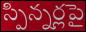
స్పిన్నర్లపై